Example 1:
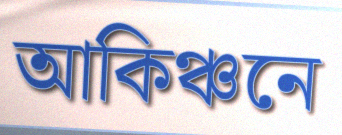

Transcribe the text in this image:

আকিঞ্চনে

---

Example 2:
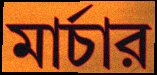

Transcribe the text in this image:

মার্চার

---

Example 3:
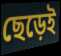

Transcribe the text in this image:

ছেড়েই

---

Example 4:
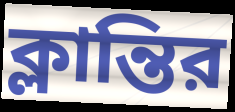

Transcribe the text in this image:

ক্লান্তির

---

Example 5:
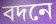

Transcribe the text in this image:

বদনে